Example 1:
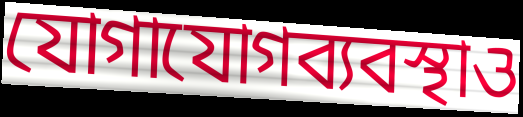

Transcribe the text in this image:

যোগাযোগব্যবস্থাও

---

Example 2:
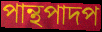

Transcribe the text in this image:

পান্থপাদপ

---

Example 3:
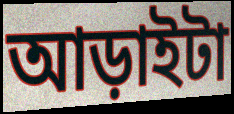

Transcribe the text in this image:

আড়াইটা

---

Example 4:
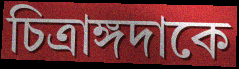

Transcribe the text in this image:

চিত্রাঙ্গদাকে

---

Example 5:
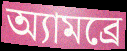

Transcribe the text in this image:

অ্যামব্রে